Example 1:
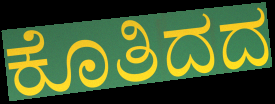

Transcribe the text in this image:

ಕೊತಿದದ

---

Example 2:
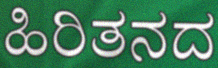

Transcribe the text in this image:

ಹಿರಿತನದ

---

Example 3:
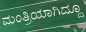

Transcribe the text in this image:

ಮಂತ್ರಿಯಾಗಿದ್ದೂ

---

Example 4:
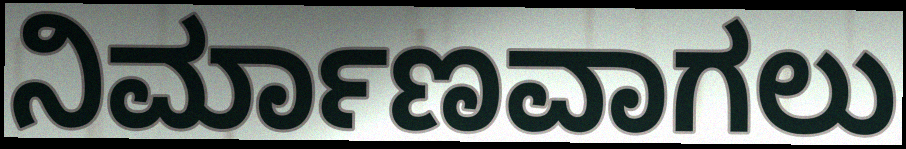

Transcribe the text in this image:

ನಿರ್ಮಾಣವಾಗಲು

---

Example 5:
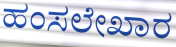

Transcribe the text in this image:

ಹಂಸಲೇಖಾರ